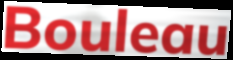
Bouleau